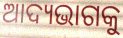
ଆଦ୍ୟଭାଗକୁ